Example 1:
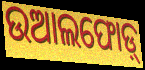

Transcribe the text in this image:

ଉଆଲଫୋଡ଼୍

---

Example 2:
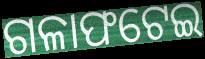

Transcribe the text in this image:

ଗଳାଫଟେଇ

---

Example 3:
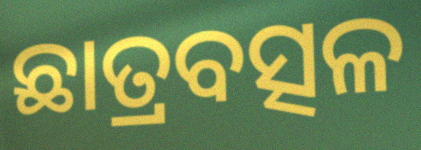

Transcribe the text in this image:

ଛାତ୍ରବତ୍ସଳ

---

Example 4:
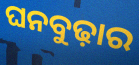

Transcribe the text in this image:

ଘନବୁଢ଼ାର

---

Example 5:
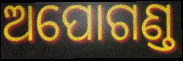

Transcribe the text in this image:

ଅପୋଗଣ୍ଡ